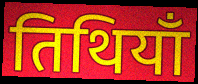
तिथियाँ